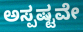
ಅಸ್ಪಷ್ಟವೇ